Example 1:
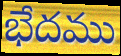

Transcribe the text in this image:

భేదము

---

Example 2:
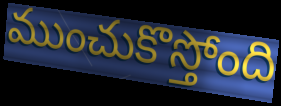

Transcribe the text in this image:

ముంచుకొస్తోంది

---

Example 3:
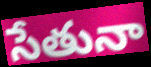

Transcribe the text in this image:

సేతునా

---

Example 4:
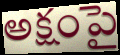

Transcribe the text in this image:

అక్షంపై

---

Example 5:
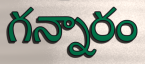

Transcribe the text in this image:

గన్నారం